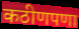
कठीणपणा